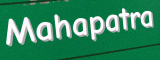
Mahapatra